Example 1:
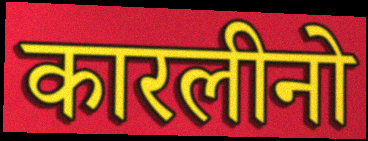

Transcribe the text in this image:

कारलीनो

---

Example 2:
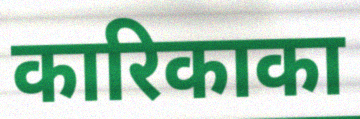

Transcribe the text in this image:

कारिकाका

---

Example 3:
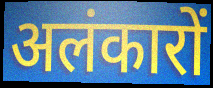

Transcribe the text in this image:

अलंकारों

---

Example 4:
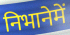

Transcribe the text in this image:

निभानेमें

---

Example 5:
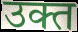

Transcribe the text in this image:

उक्‍त